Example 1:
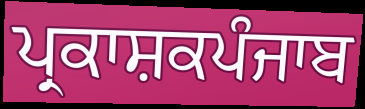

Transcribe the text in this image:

ਪ੍ਰਕਾਸ਼ਕਪੰਜਾਬ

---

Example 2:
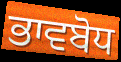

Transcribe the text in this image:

ਭਾਵਬੋਧ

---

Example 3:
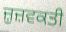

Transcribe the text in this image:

ਜ਼ੁਜ਼ਵਕਤੀ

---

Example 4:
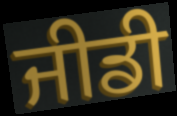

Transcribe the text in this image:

ਜੀਡੀ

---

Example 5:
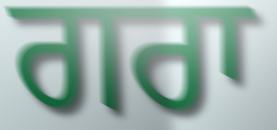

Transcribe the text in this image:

ਗਰਾ